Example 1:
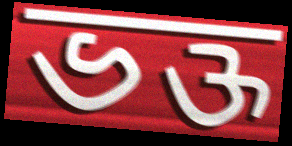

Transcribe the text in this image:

ভক্ত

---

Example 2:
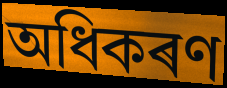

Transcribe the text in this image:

অধিকৰণ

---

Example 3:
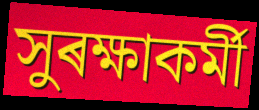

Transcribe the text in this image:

সুৰক্ষাকৰ্মী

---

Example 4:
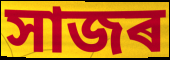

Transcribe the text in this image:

সাজৰ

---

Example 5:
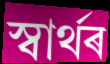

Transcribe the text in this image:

স্বাৰ্থৰ